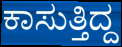
ಕಾಸುತ್ತಿದ್ದ